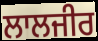
ਲਾਲਜੀਰ